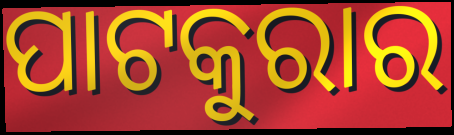
ପାଟକୁରାର